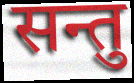
सन्‍तु